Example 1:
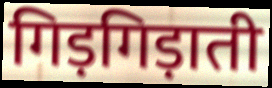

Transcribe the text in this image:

गिड़गिड़ाती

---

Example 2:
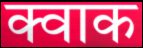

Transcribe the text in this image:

क्वाक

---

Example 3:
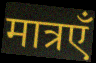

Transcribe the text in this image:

मात्रएँ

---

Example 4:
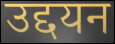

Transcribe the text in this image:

उद्दयन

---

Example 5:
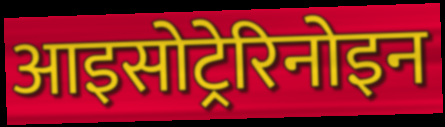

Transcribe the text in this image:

आइसोट्रेरिनोइन